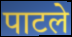
पाटले